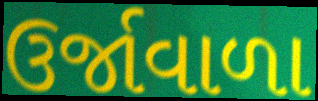
ઉર્જાવાળા